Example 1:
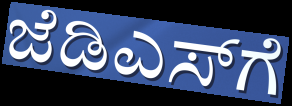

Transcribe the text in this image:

ಜೆಡಿಎಸ್‌ಗೆ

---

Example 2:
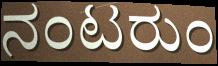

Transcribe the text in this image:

ನಂಟರುಂ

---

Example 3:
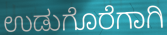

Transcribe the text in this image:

ಉಡುಗೊರೆಗಾಗಿ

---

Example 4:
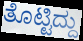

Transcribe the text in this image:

ತೊಟ್ಟಿದ್ದು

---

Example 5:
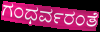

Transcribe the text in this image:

ಗಂಧರ್ವರಂತೆ